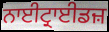
ਨਾਈਟ੍ਰਾਈਡਜ਼